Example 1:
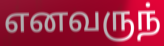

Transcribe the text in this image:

எனவருந்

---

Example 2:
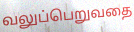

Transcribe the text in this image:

வலுப்பெறுவதை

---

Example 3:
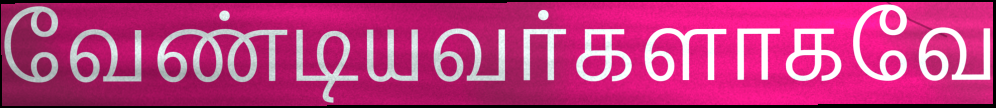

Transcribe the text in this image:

வேண்டியவர்களாகவே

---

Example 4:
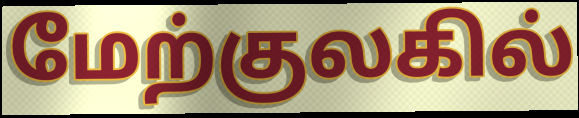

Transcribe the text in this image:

மேற்குலகில்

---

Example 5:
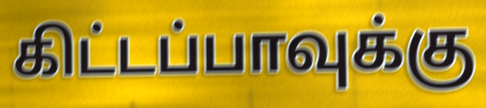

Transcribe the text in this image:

கிட்டப்பாவுக்கு